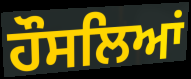
ਹੌਸਲਿਆਂ